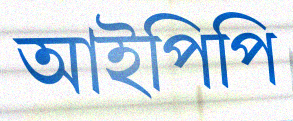
আইপিপি